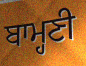
ਬਾਮ੍ਹਣੀ